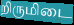
றிருமிடை